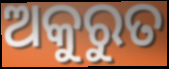
ଅକୁରୁତ